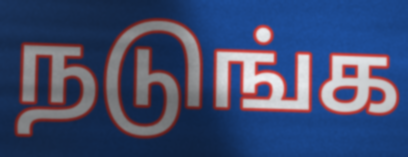
நடுங்க